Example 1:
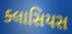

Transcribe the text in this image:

ક્લાસિયસ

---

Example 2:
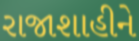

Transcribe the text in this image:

રાજાશાહીને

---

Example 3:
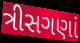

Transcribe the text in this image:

ત્રીસગણાં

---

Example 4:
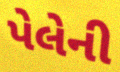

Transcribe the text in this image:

પેલેની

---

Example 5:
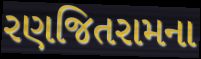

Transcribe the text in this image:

રણજિતરામના